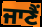
ਜਾਣੈਂ